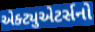
એક્ટ્યુએટર્સનો